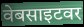
वेबसाइटवर